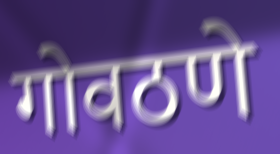
गोवठणे